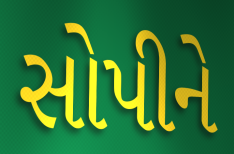
સોપીને